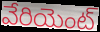
వేరియెంట్